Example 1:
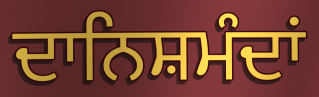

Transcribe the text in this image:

ਦਾਨਿਸ਼ਮੰਦਾਂ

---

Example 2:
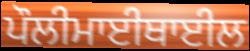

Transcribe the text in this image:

ਪੌਲੀਮਾਈਥਾਈਲ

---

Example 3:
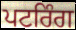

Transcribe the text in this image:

ਪਟਰਿੰਗ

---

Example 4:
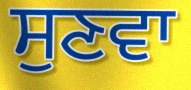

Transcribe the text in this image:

ਸੁਣਵਾ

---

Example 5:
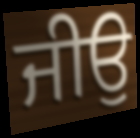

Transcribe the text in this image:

ਜੀਉ